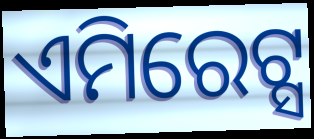
ଏମିରେଟ୍ସ